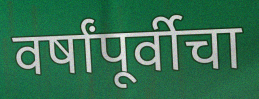
वर्षांपूर्वीचा